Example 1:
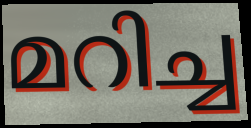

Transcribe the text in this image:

മറിച്ച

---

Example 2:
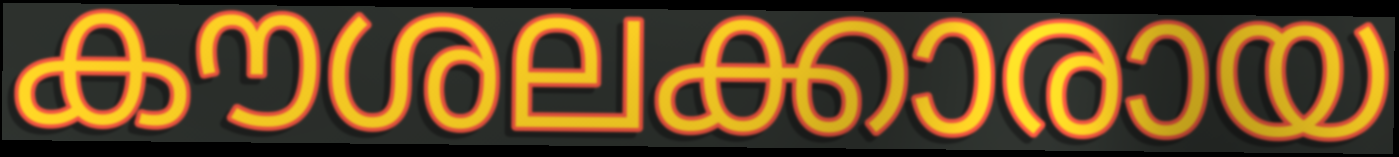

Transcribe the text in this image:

കൗശലക്കാരായ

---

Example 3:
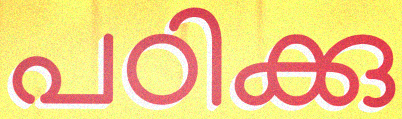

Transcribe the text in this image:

പഠിക്കു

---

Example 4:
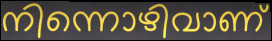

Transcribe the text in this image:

നിന്നൊഴിവാണ്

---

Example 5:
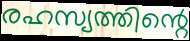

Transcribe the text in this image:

രഹസ്യത്തിന്റെ